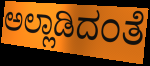
ಅಲ್ಲಾಡಿದಂತೆ